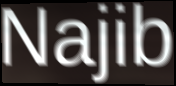
Najib